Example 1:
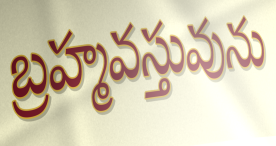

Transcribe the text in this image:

బ్రహ్మవస్తువును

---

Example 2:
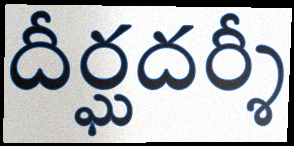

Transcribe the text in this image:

దీర్ఘదర్శీ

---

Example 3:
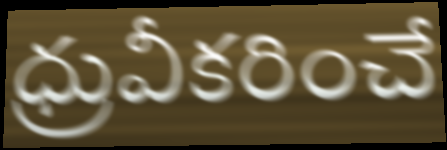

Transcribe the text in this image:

ధ్రువీకరించే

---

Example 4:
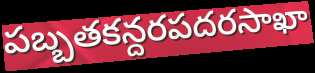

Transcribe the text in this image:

పబ్బతకన్దరపదరసాఖా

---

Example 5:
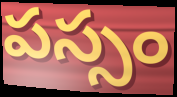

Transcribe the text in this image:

పస్సం